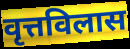
वृत्तविलास